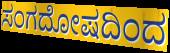
ಸಂಗದೋಷದಿಂದ